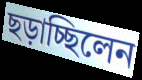
ছড়াচ্ছিলেন